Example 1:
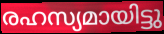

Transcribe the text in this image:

രഹസ്യമായിട്ടു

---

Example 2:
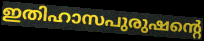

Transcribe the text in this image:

ഇതിഹാസപുരുഷന്റെ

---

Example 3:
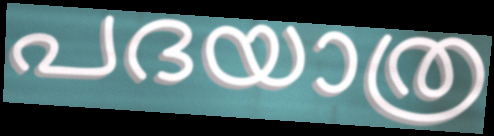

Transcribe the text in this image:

പദയാത്ര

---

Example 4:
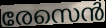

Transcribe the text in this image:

രേസെൻ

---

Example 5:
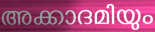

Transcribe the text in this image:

അക്കാദമിയും